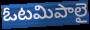
ఓటమిపాలై